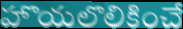
హొయలొలికించే